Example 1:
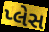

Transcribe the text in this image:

પ્લેસ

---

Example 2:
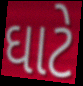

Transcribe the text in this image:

ઘાટે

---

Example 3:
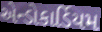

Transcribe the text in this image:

એન્ડોકાર્ડિયમ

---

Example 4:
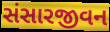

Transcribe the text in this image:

સંસારજીવન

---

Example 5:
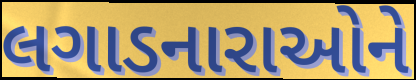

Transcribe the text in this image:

લગાડનારાઓને